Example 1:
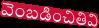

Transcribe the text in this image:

వెంబడించితివి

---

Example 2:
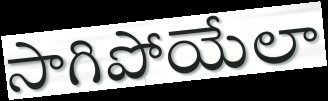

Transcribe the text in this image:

సాగిపోయేలా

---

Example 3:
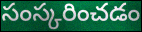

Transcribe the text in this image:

సంస్కరించడం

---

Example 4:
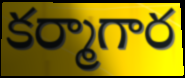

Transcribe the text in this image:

కర్మాగార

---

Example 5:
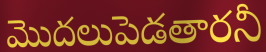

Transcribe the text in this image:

మొదలుపెడతారనీ